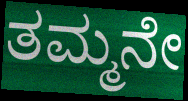
ತಮ್ಮನೇ